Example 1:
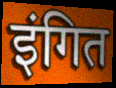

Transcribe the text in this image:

इंगित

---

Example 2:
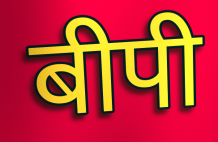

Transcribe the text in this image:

बीपी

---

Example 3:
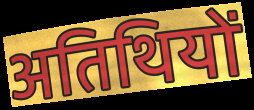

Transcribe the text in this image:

अतिथियों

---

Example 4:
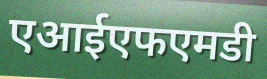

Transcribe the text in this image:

एआईएफएमडी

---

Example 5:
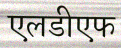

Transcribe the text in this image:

एलडीएफ